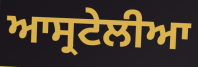
ਆਸ੍ਰਟੇਲੀਆ